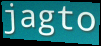
jagto